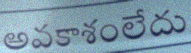
అవకాశంలేదు